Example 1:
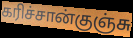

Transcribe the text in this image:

கரிச்சான்குஞ்சு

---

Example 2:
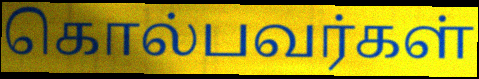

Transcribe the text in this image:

கொல்பவர்கள்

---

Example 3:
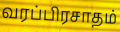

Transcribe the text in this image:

வரப்பிரசாதம்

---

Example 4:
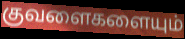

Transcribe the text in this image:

குவளைகளையும்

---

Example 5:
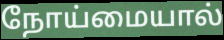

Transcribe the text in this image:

நோய்மையால்